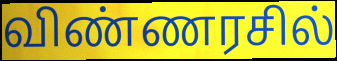
விண்ணரசில்